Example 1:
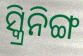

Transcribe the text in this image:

ସ୍କ୍ରିନିଙ୍ଗ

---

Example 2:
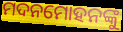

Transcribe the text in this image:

ମଦନମୋହନଙ୍କୁ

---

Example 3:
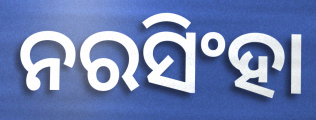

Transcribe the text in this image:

ନରସିଂହା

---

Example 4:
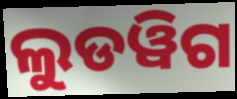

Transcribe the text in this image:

ଲୁଡୱିଗ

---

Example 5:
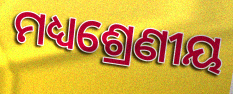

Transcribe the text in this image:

ମଧ୍ୟଶ୍ରେଣୀୟ